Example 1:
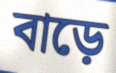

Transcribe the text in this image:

বাড়ে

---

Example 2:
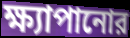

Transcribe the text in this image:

ক্ষ্যাপানোর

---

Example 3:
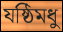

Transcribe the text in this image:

যষ্ঠিমধু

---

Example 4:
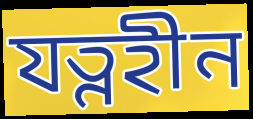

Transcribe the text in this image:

যত্নহীন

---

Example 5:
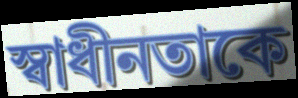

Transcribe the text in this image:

স্বাধীনতাকে